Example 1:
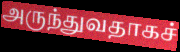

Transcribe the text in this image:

அருந்துவதாகச்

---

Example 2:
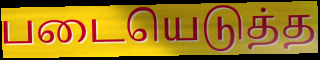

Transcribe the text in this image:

படையெடுத்த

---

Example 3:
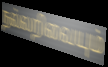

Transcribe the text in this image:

நல்லறிவையும்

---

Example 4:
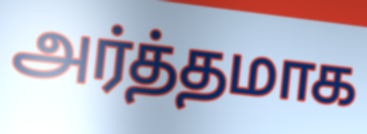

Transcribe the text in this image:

அர்த்தமாக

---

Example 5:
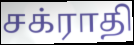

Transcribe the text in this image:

சக்ராதி